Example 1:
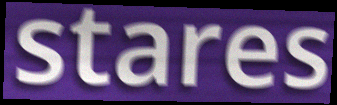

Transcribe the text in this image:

stares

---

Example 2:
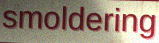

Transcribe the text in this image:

smoldering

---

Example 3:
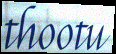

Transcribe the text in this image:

thootu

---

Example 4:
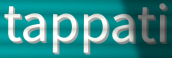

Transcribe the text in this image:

tappati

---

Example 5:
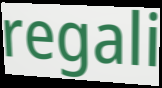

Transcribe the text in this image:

regali